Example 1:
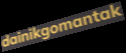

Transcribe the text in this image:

dainikgomantak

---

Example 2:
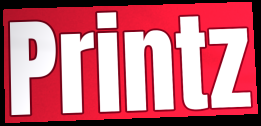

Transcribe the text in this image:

Printz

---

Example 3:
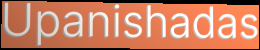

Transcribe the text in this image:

Upanishadas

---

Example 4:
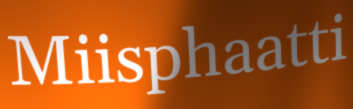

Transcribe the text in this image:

Miisphaatti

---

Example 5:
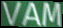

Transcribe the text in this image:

VAM